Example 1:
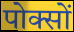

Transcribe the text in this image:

पोक्सों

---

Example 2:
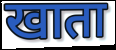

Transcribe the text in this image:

खाता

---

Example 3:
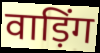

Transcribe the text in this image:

वाड़िंग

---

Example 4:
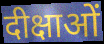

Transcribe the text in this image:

दीक्षाओं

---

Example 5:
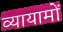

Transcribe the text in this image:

व्यायामों